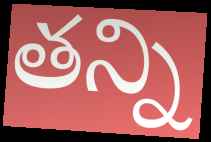
తన్ని